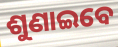
ଶୁଣାଇବେ